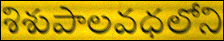
శిశుపాలవధలోని